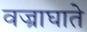
वज्राघाते